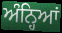
ਅੰਨ੍ਹਿਆਂ